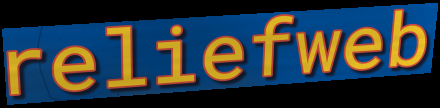
reliefweb